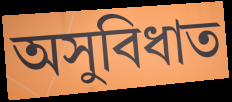
অসুবিধাত